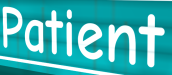
Patient